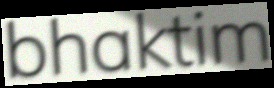
bhaktim